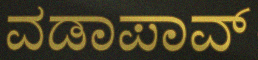
ವಡಾಪಾವ್